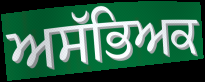
ਅਸੱਭਿਅਕ